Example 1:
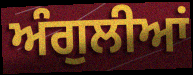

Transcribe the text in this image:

ਅੰਗੁਲੀਆਂ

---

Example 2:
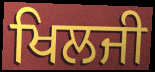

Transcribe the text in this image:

ਖਿਲਜੀ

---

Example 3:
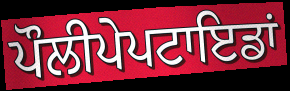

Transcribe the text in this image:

ਪੌਲੀਪੇਪਟਾਇਡਾਂ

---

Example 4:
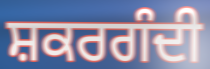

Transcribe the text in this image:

ਸ਼ਕਰਗੰਦੀ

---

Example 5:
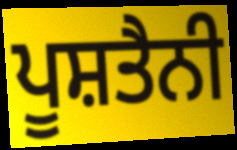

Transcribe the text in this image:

ਪੂਸ਼ਤੈਨੀ